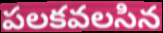
పలకవలసిన